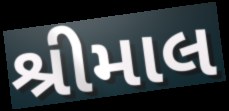
શ્રીમાલ